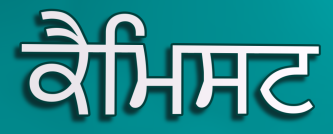
ਕੈਮਿਸਟ